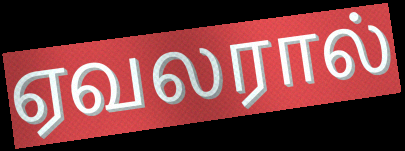
ஏவலரால்